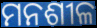
ମନଶୀଳ